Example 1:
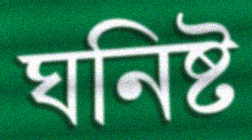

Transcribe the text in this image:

ঘনিষ্ট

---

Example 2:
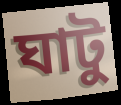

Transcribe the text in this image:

ঘাটু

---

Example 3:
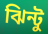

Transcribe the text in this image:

ঝিন্টু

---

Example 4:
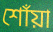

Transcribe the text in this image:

শোঁয়া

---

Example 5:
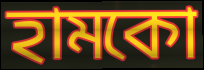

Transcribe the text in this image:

হামকো